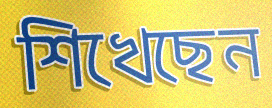
শিখেছেন